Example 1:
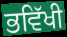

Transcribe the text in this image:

ਭਵਿੱਖੀ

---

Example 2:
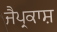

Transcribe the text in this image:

ਜੈਪ੍ਰਕਾਸ਼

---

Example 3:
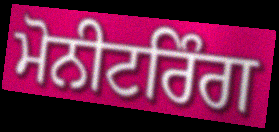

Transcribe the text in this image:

ਮੋਨੀਟਰਿੰਗ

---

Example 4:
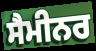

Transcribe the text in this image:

ਸੈਮੀਨਰ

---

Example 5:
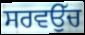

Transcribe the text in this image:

ਸਰਵਉੱਚ